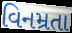
વિનમ્રતા